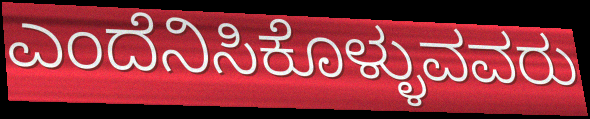
ಎಂದೆನಿಸಿಕೊಳ್ಳುವವರು